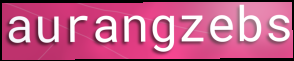
aurangzebs